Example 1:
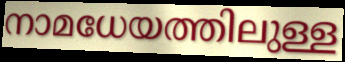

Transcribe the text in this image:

നാമധേയത്തിലുള്ള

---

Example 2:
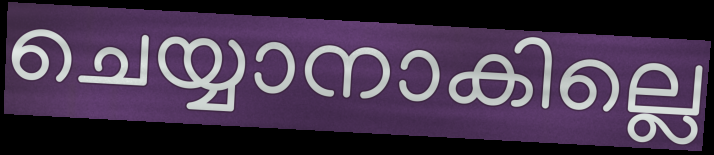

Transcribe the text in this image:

ചെയ്യാനാകില്ലെ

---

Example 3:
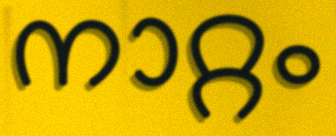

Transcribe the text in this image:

നാറ്റം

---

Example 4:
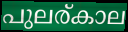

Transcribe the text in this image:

പുലര്കാല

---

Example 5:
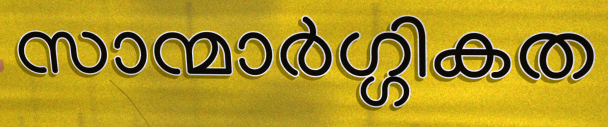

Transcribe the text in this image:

സാന്മാർഗ്ഗികത